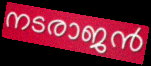
നടരാജൻ